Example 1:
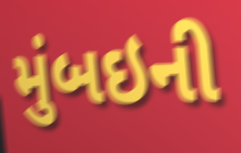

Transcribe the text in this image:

મુંબઇની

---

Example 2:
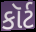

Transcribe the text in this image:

કૉર્ટ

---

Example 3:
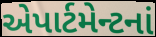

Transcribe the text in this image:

એપાર્ટમેન્ટનાં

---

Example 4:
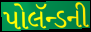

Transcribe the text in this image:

પોલૅન્ડની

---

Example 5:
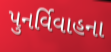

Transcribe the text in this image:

પુનર્વિવાહના